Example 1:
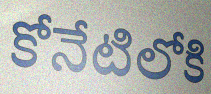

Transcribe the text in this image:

కోనేటిలోకి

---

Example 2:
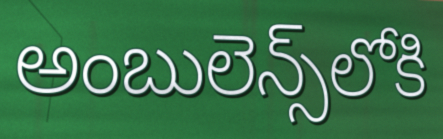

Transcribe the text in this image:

అంబులెన్స్‌లోకి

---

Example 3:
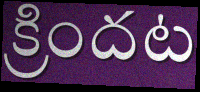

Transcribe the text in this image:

క్రిందట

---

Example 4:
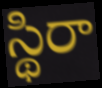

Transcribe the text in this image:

స్థిరా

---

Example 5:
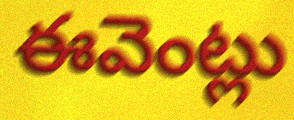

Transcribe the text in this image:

ఈవెంట్లు